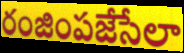
రంజింపజేసేలా